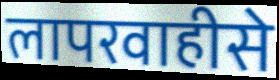
लापरवाहीसे